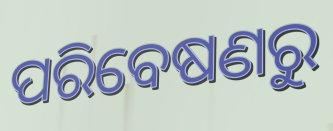
ପରିବେଷଣରୁ